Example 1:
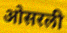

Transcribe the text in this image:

ओसरली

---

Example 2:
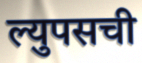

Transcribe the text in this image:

ल्युपसची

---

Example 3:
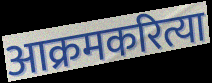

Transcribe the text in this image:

आक्रमकरित्या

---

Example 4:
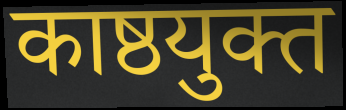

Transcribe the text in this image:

काष्ठयुक्त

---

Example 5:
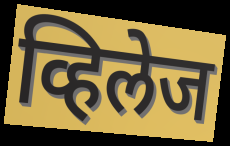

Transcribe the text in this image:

व्हिलेज